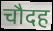
चौदह